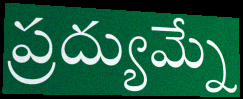
ప్రద్యుమ్నే